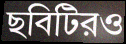
ছবিটিরও